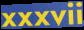
xxxvii